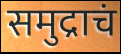
समुद्राचं